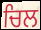
ਚਿਲ